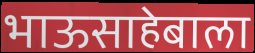
भाऊसाहेबाला